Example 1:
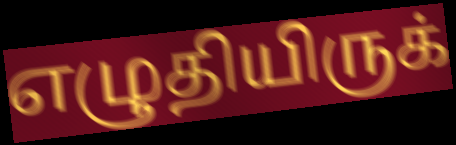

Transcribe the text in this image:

எழுதியிருக்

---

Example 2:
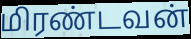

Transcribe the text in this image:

மிரண்டவன்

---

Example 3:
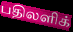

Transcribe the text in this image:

பதிலளிக்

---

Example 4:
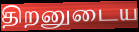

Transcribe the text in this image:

திறனுடைய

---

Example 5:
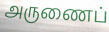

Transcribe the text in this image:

அருணைப்